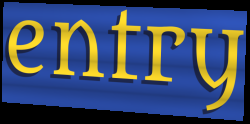
entry